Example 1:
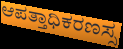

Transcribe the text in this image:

ಆಪತ್ತಾಧಿಕರಣಸ್ಸ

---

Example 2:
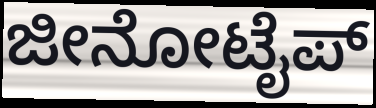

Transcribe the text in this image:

ಜೀನೋಟೈಪ್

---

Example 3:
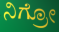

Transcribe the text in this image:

ನಿಗ್ರೋ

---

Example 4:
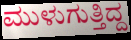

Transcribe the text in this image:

ಮುಳುಗುತ್ತಿದ್ದ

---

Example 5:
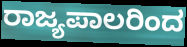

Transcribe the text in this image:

ರಾಜ್ಯಪಾಲರಿಂದ